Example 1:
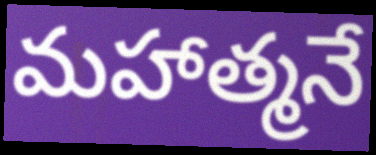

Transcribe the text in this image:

మహాత్మనే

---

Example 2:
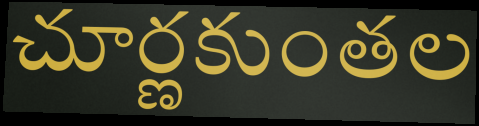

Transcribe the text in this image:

చూర్ణకుంతల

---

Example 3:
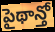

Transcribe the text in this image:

పైథాన్తో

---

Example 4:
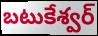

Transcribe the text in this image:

బటుకేశ్వర్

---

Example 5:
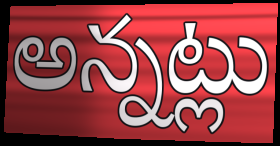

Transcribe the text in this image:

అన్నట్లు